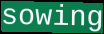
sowing